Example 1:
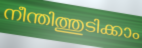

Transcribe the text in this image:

നീന്തിത്തുടിക്കാം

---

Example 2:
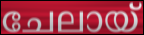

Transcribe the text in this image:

ചേലായ്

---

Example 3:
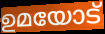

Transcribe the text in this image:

ഉമയോട്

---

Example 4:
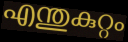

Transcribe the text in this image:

എന്തുകുറ്റം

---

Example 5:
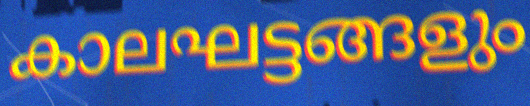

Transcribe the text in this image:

കാലഘട്ടങ്ങളും